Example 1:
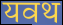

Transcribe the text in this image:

यवथ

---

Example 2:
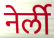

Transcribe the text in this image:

नेर्ली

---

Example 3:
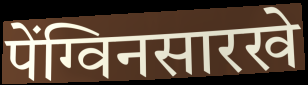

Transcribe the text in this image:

पेंग्विनसारखे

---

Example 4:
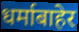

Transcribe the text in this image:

धर्माबाहेर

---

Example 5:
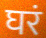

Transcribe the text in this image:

घरं